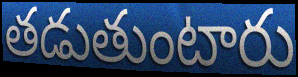
తడుతుంటారు